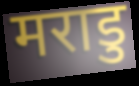
मराडु